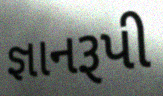
જ્ઞાનરૂપી